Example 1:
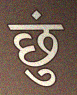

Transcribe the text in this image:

छुं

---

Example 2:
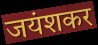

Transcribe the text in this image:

जयंशकर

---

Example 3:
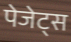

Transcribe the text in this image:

पेजेट्स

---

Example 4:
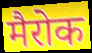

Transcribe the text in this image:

मैरोक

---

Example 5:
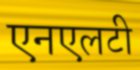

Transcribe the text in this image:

एनएलटी